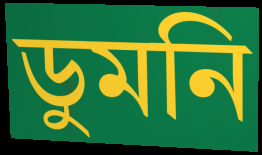
ডুমনি